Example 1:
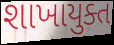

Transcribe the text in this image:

શાખાયુક્ત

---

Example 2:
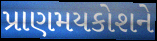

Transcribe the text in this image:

પ્રાણમયકોશને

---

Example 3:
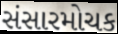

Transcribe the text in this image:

સંસારમોચક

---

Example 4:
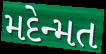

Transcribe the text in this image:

મદેન્મત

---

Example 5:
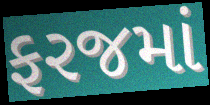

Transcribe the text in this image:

ફરજમાં